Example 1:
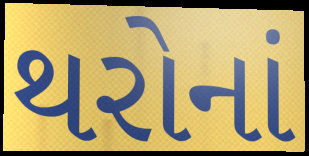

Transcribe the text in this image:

થરોનાં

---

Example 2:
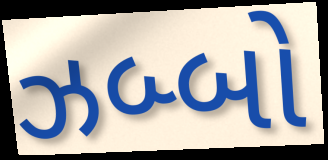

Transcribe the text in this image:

ઝબ્બો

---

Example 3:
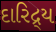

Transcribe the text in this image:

દારિદ્ર્ય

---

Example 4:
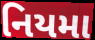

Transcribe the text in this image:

નિયમા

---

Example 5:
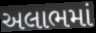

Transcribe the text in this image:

અલાભમાં